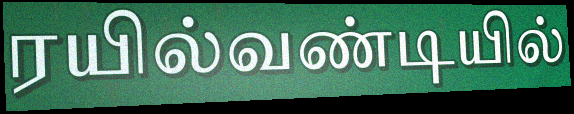
ரயில்வண்டியில்